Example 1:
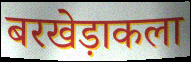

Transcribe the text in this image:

बरखेड़ाकला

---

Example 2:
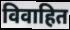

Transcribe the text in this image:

विवाहित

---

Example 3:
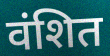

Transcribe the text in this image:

वंशित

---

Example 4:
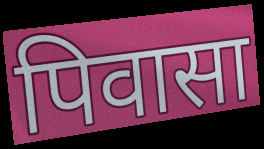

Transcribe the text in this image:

पिवासा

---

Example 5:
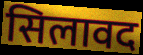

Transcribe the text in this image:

सिलावद